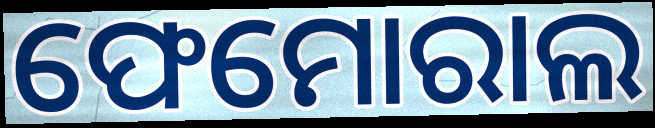
ଫେମୋରାଲ